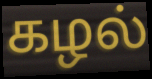
கழல்